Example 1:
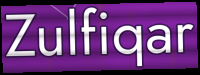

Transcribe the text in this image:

Zulfiqar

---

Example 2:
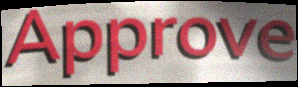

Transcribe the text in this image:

Approve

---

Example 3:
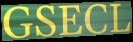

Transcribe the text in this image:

GSECL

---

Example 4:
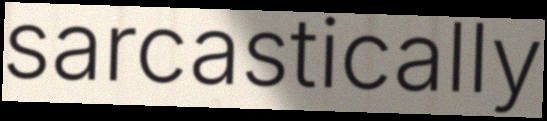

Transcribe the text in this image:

sarcastically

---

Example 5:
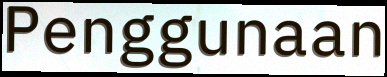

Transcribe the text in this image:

Penggunaan